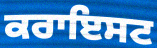
ਕਰਾਇਸਟ